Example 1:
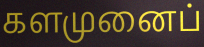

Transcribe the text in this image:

களமுனைப்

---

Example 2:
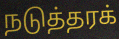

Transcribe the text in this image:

நடுத்தரக்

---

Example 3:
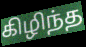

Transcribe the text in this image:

கிழிந்த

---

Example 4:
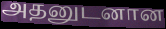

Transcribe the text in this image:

அதனுடனான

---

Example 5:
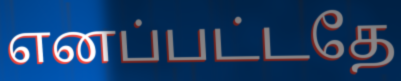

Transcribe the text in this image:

எனப்பட்டதே